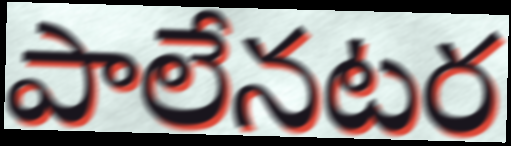
పాలేనటర